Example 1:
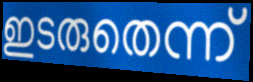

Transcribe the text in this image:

ഇടരുതെന്ന്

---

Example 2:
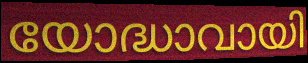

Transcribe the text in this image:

യോദ്ധാവായി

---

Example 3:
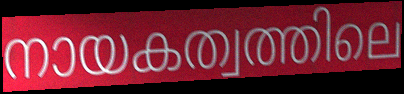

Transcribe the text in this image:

നായകത്വത്തിലെ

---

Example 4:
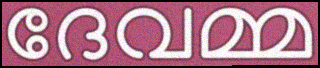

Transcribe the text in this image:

ദേവമ്മ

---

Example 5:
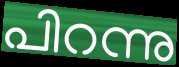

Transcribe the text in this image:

പിറന്നു